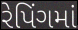
રેપિંગમાં